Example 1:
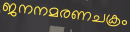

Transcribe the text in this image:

ജനനമരണചക്രം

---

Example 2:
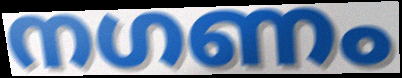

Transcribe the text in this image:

നഗണം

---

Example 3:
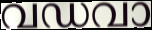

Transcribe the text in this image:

വഡവാ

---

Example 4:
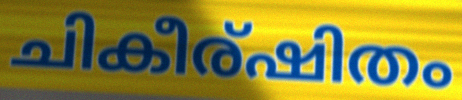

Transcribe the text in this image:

ചികീര്ഷിതം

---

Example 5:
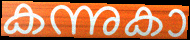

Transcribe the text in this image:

കന്നുകാ